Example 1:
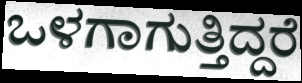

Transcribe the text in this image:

ಒಳಗಾಗುತ್ತಿದ್ದರೆ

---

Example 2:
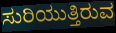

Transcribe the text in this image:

ಸುರಿಯುತ್ತಿರುವ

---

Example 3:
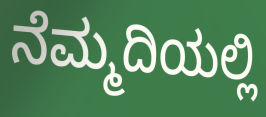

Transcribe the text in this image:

ನೆಮ್ಮದಿಯಲ್ಲಿ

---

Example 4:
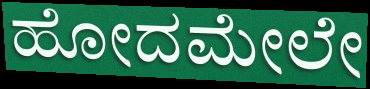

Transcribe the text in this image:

ಹೋದಮೇಲೇ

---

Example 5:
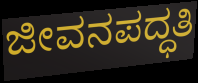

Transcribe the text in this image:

ಜೀವನಪದ್ಧತಿ